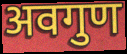
अवगुण